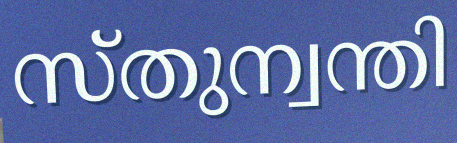
സ്തുന്വന്തി